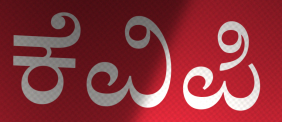
ಕೆವಿಪಿ